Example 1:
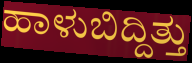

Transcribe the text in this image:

ಹಾಳುಬಿದ್ದಿತ್ತು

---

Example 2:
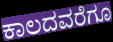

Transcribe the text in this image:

ಕಾಲದವರೆಗೂ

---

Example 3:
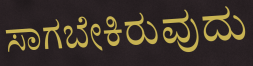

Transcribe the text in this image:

ಸಾಗಬೇಕಿರುವುದು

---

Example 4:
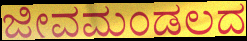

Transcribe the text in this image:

ಜೀವಮಂಡಲದ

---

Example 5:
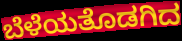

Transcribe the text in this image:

ಬೆಳೆಯತೊಡಗಿದ